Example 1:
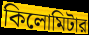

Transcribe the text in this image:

কিলোমিটার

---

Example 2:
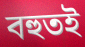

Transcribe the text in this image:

বহুতই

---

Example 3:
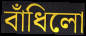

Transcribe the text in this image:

বাঁধিলো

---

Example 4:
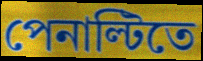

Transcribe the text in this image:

পেনাল্টিতে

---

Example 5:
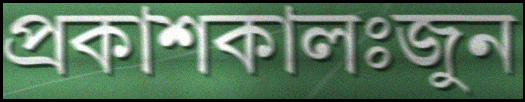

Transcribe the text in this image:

প্রকাশকালঃজুন